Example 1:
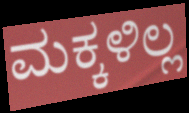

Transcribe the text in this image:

ಮಕ್ಕಳಿಲ್ಲ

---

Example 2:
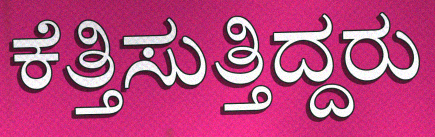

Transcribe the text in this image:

ಕೆತ್ತಿಸುತ್ತಿದ್ದರು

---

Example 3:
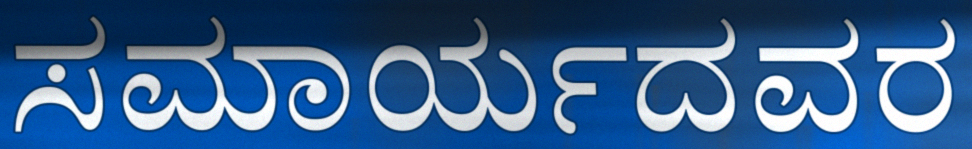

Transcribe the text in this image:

ಸಮಾರ್ಯದವರ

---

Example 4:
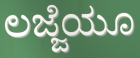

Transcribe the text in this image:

ಲಜ್ಜೆಯೂ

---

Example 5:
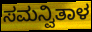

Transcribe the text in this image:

ಸಮನ್ವಿತಾಳ